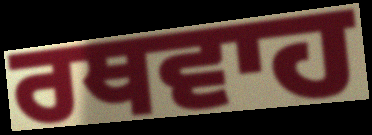
ਰਥਵਾਹ